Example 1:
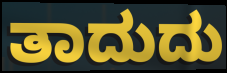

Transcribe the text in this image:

ತಾದುದು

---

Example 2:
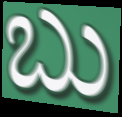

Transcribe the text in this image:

ಬು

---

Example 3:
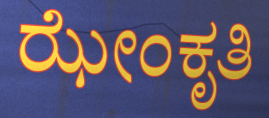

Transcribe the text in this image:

ಝೇಂಕೃತಿ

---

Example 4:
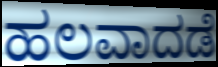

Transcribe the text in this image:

ಹಲವಾದಡೆ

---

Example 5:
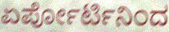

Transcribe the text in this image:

ಏರ್ಪೋರ್ಟಿನಿಂದ